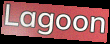
Lagoon